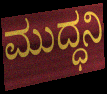
ಮುದ್ಧನಿ